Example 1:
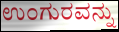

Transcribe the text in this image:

ಉಂಗುರವನ್ನು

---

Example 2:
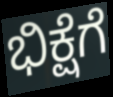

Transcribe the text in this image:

ಭಿಕ್ಷೆಗೆ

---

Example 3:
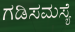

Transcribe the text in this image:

ಗಡಿಸಮಸ್ಯೆ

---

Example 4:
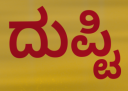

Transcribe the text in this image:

ದುಪ್ಟಿ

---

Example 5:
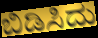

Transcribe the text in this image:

ಬಿಡಿಸಿದು